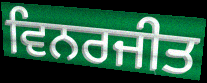
ਵਿਨਰਜੀਤ